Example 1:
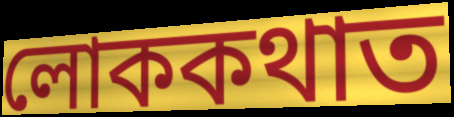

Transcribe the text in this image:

লোককথাত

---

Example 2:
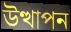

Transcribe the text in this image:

উত্থাপন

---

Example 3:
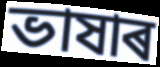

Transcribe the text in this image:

ভাষাৰ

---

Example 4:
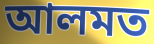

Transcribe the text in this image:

আলমত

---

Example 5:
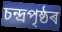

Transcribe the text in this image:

চন্দ্ৰপৃষ্ঠৰ